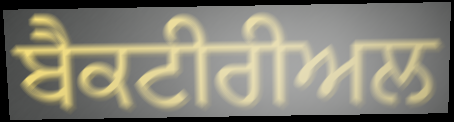
ਬੈਕਟੀਰੀਅਲ